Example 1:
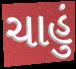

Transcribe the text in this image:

ચાહું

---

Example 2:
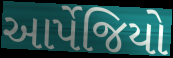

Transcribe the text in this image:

આર્પેજિયો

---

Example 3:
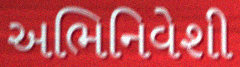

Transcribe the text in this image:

અભિનિવેશી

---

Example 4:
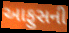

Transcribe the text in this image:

આફુસની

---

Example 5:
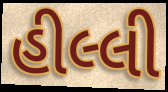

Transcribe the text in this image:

હીલ્લી